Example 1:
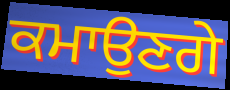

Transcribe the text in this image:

ਕਮਾਉਣਗੇ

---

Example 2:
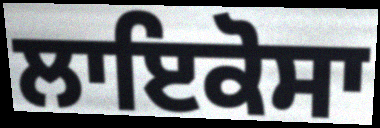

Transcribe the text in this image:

ਲਾਇਕੋਸਾ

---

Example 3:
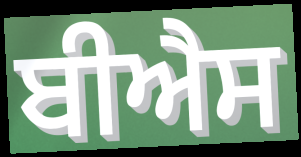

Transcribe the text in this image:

ਬੀਐਸ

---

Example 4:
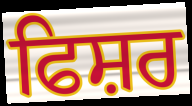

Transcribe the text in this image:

ਫਿਸ਼ਰ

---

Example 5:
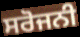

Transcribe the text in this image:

ਸਰੋਜਨੀ